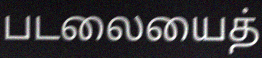
படலையைத்